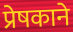
प्रेषकाने